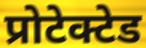
प्रोटेक्टेड